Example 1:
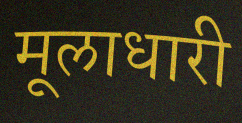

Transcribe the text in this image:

मूलाधारी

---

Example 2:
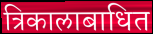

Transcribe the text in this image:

त्रिकालाबाधित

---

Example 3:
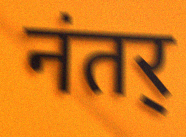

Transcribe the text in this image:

नंतर्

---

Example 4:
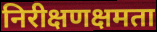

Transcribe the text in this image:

निरीक्षणक्षमता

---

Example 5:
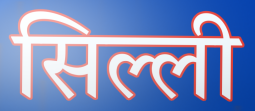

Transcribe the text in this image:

सिल्ली